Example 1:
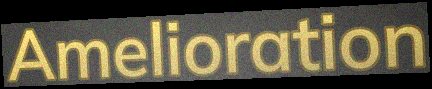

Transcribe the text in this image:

Amelioration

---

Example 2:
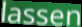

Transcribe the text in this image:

lassen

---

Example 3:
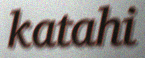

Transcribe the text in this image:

katahi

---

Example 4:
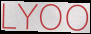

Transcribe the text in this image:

LYOO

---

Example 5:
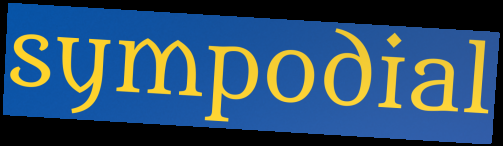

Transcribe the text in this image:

sympodial